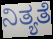
ನಿತ್ಯತೆ